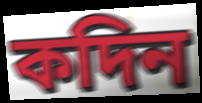
কদিন